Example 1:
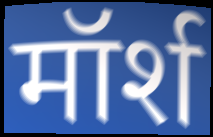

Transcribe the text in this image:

मॉर्श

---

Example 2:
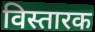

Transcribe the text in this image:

विस्तारक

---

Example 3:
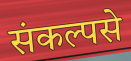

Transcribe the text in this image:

संकल्पसे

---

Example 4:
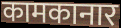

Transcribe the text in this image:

कामकानार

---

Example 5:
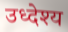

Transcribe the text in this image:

उध्देश्य